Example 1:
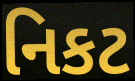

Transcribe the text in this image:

નિકટ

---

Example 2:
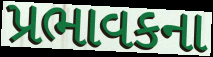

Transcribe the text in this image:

પ્રભાવકના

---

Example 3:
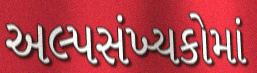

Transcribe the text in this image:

અલ્પસંખ્યકોમાં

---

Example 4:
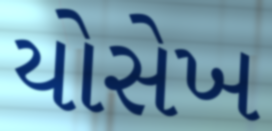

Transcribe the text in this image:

યોસેખ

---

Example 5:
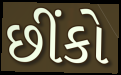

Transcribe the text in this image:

છીંકો